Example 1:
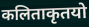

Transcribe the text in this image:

कलिताकृतयो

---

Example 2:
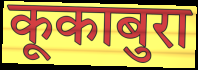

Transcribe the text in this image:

कूकाबुरा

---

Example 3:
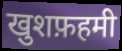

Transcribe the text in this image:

खुशफ़हमी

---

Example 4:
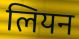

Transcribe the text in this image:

लियन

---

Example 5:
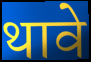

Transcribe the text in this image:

थावे